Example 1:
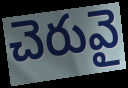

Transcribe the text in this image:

చెరువై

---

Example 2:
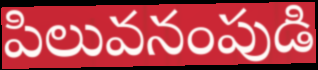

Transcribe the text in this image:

పిలువనంపుడి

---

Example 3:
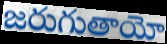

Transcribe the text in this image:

జరుగుతాయో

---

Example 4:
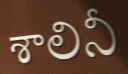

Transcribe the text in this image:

శాలినీ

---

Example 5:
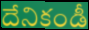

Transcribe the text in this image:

దేనికండీ